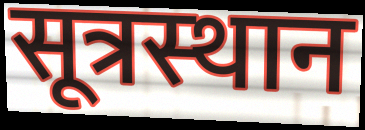
सूत्रस्थान